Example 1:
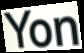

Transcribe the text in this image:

Yon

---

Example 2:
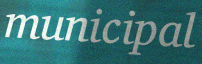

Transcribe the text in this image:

municipal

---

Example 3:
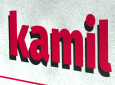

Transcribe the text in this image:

kamil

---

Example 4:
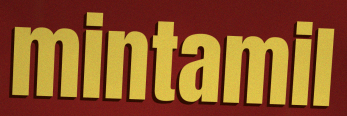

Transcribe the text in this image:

mintamil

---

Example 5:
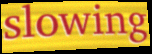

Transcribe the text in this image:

slowing